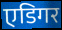
एडिगर